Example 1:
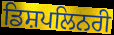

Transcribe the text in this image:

ਡਿਸ਼ਪਲਿਨਰੀ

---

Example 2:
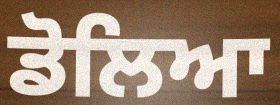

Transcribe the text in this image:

ਡੋਲਿਆ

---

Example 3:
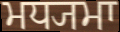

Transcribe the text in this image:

ਮਧ੍ਯਮਾ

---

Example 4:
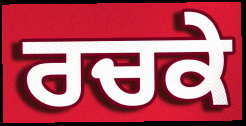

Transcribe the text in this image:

ਰਚਕੇ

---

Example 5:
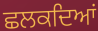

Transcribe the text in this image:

ਛਲਕਦਿਆਂ